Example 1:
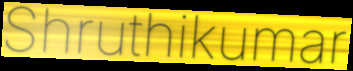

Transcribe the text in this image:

Shruthikumar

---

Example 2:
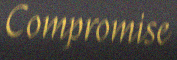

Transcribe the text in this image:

Compromise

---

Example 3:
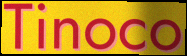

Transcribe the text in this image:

Tinoco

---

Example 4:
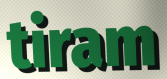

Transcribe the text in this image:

tiram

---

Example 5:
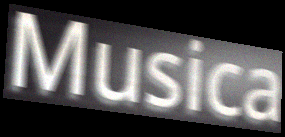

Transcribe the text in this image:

Musica